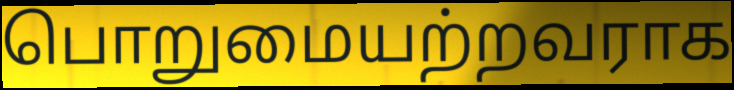
பொறுமையற்றவராக